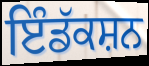
ਇੰਡੱਕਸ਼ਨ